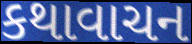
કથાવાચન